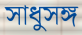
সাধুসঙ্গ